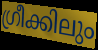
ഗ്രീക്കിലും